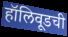
हॉलिवूडची